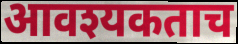
आवश्यकताच